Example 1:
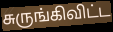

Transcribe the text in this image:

சுருங்கிவிட்ட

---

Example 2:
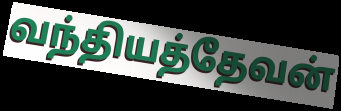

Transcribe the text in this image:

வந்தியத்தேவன்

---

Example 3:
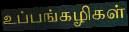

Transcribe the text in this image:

உப்பங்கழிகள்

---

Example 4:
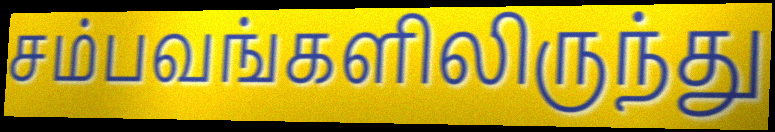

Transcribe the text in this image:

சம்பவங்களிலிருந்து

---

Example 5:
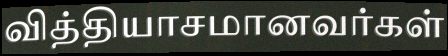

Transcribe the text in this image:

வித்தியாசமானவர்கள்